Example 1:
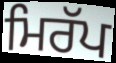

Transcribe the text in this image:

ਮਿਰੱਪ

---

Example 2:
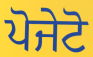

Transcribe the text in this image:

ਪੋਜੇਟੋ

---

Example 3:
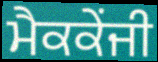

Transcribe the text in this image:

ਮੈਕਕੇਂਜੀ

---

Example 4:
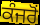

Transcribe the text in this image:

ਕੰਜਰੋਂ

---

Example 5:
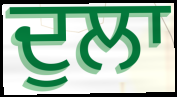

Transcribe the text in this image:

ਦੁਲਾ